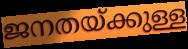
ജനതയ്ക്കുള്ള